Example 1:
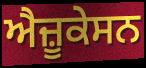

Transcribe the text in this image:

ਐਜ਼ੂਕੇਸਨ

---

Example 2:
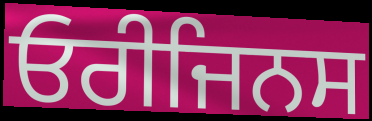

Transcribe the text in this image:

ਓਰੀਜਿਨਸ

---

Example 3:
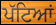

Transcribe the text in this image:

ਪੱਟਿਆਂ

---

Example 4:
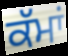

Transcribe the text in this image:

ਕੱਮਾਂ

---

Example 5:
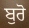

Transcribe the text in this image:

ਬੁਰੋ